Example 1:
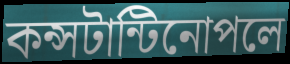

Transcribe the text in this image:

কন্সটান্টিনোপলে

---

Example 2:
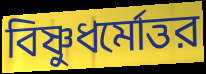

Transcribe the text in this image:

বিষ্ণুধর্মোত্তর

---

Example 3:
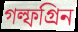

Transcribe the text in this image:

গল্ফগ্রিন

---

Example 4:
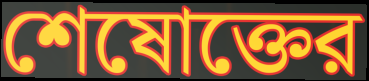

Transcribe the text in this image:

শেষোক্তের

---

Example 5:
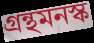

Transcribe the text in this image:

গ্রন্থমনস্ক